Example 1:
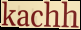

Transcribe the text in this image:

kachh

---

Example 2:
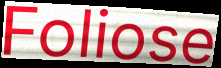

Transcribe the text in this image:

Foliose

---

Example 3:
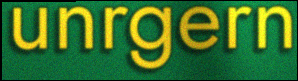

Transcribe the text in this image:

unrgern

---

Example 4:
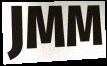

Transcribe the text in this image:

JMM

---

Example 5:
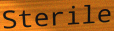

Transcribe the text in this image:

Sterile